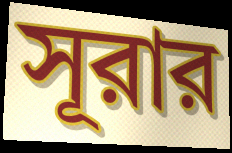
সূরার